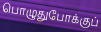
பொழுதுபோக்குப்